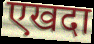
एखदा